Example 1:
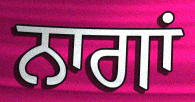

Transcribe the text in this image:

ਨਾਗਾਂ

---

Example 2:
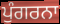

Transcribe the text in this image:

ਪੁੰਗਰਨਾ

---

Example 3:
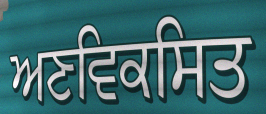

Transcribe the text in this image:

ਅਣਵਿਕਸਿਤ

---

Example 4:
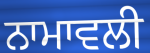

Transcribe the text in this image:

ਨਾਮਾਵਲੀ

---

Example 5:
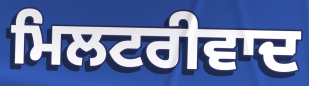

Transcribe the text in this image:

ਮਿਲਟਰੀਵਾਦ